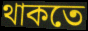
থাকতে